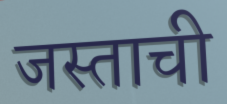
जस्ताची